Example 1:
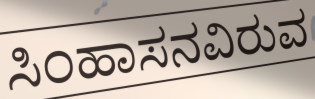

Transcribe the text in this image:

ಸಿಂಹಾಸನವಿರುವ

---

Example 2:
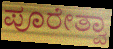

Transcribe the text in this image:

ಪೂರೇತ್ವಾ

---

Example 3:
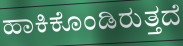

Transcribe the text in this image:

ಹಾಕಿಕೊಂಡಿರುತ್ತದೆ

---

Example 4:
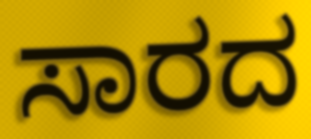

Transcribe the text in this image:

ಸಾರದ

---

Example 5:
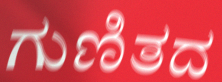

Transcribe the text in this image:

ಗುಣಿತದ